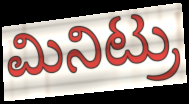
ಮಿನಿಟ್ರು